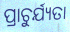
ପ୍ରାଚୁର୍ଯ୍ୟତା